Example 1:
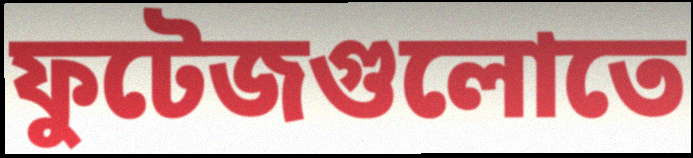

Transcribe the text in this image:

ফুটেজগুলোতে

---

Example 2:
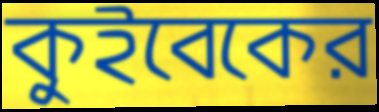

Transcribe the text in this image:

কুইবেকের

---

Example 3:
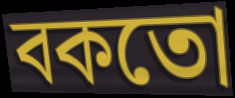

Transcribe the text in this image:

বকতো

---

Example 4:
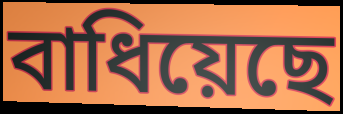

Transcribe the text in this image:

বাধিয়েছে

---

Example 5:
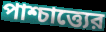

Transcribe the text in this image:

পাশ্চাত্ত্যের